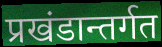
प्रखंडान्तर्गत